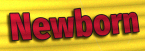
Newborn